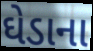
ઘેડાના